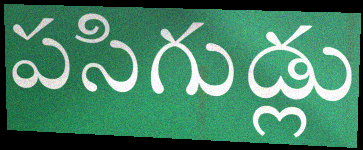
పసిగుడ్లు